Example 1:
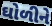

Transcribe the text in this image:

ઘોળીને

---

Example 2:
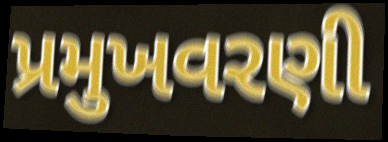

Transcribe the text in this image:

પ્રમુખવરણી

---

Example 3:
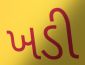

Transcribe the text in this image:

ખડી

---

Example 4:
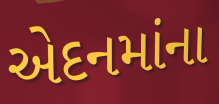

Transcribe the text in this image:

એદનમાંના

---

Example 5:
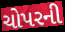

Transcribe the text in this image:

ચોપરની